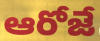
ఆరోజే